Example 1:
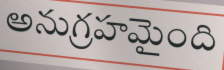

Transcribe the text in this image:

అనుగ్రహమైంది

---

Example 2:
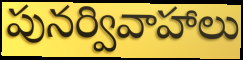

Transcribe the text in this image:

పునర్వివాహాలు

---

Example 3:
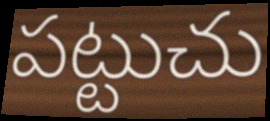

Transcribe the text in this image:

పట్టుచు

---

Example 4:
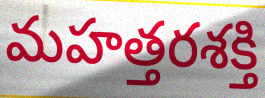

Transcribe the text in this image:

మహత్తరశక్తి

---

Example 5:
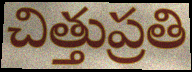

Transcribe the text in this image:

చిత్తుప్రతి